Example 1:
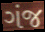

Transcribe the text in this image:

ગંજ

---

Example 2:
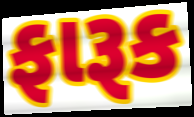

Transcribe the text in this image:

ફારૂક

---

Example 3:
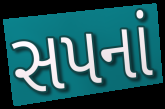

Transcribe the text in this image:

સપનાં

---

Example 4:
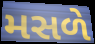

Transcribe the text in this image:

મસળે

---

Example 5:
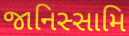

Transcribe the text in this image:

જાનિસ્સામિ